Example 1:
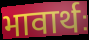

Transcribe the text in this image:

भावार्थः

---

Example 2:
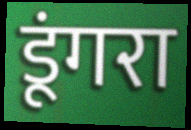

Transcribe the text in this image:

डूंगरा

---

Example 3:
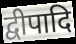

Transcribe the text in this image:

द्वीपादि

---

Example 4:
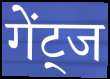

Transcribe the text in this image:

गेंट्ज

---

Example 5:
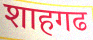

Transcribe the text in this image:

शाहगढ